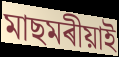
মাছমৰীয়াই